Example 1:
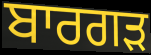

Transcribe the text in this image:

ਬਾਰਗੜ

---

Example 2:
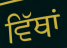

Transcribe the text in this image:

ਵਿੱਥਾਂ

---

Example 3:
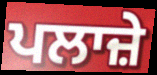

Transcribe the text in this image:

ਪਲਾਜ਼ੇ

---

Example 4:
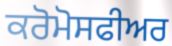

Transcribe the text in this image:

ਕਰੋਮੋਸਫੀਅਰ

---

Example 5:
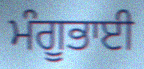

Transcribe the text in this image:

ਮੰਗੂਭਾਈ